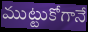
ముట్టుకోగానే